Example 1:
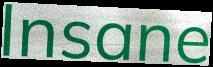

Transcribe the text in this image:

Insane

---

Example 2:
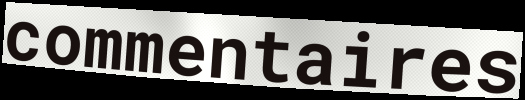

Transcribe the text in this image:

commentaires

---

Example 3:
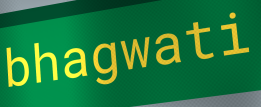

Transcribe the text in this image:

bhagwati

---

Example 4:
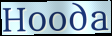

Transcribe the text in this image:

Hooda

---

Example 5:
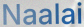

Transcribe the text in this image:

Naalai